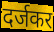
दर्जकर